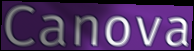
Canova